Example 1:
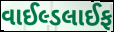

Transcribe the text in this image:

વાઈલ્ડલાઈફ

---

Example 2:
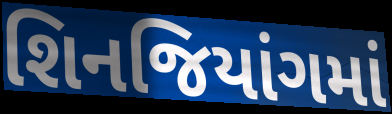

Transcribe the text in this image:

શિનજિયાંગમાં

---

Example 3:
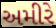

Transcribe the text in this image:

અમીરે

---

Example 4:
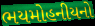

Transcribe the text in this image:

ભયમોહનીયનો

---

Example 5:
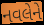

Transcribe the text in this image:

નવલેને